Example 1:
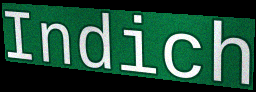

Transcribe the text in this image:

Indich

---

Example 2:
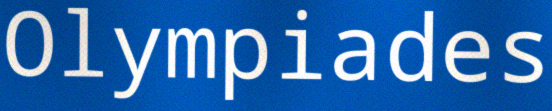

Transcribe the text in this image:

Olympiades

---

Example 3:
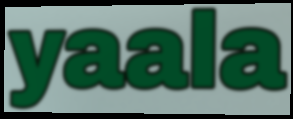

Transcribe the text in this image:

yaala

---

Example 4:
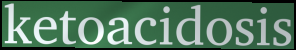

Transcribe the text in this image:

ketoacidosis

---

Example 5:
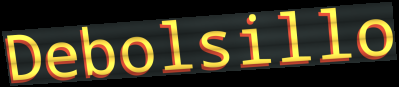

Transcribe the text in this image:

Debolsillo